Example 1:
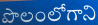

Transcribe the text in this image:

పొలంలోగాని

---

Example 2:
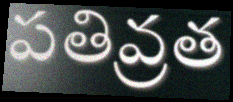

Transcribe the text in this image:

పతివ్రత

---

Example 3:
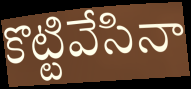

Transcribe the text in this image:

కొట్టివేసినా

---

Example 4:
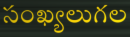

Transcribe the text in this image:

సంఖ్యలుగల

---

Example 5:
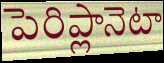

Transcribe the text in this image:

పెరిప్లానెటా